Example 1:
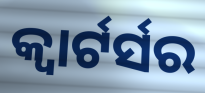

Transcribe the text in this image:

କ୍ବାର୍ଟର୍ସର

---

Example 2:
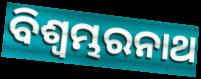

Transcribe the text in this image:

ବିଶ୍ୱମ୍ଭରନାଥ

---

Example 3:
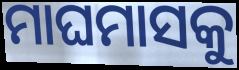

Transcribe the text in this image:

ମାଘମାସକୁ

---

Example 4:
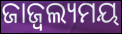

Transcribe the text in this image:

ଜାଜ୍ୱଲ୍ୟମୟ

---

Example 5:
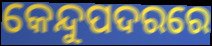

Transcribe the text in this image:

କେନ୍ଦୁପଦରରେ